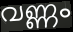
വണ്ണം